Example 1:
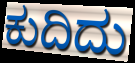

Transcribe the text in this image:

ಕುದಿದು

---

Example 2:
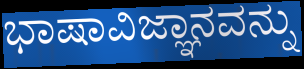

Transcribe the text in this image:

ಭಾಷಾವಿಜ್ಞಾನವನ್ನು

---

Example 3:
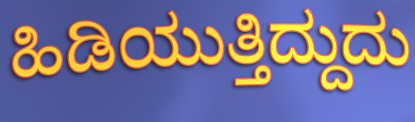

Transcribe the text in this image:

ಹಿಡಿಯುತ್ತಿದ್ದುದು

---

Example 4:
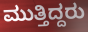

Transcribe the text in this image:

ಮುತ್ತಿದ್ದರು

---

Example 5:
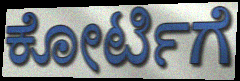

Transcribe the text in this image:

ಕೋರ್ಟಿಗೆ